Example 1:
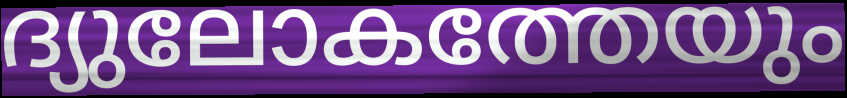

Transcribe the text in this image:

ദ്യുലോകത്തേയും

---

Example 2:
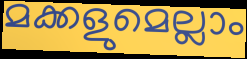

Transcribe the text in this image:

മക്കളുമെല്ലാം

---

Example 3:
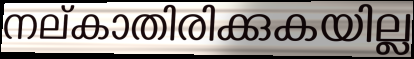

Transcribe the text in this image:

നല്‌കാതിരിക്കുകയില്ല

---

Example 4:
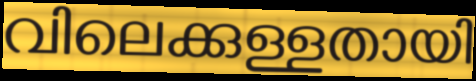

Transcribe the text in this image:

വിലെക്കുള്ളതായി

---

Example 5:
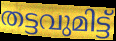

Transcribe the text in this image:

തട്ടവുമിട്ട്